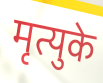
मृत्युके